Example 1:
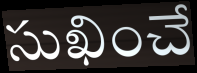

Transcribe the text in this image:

సుఖించే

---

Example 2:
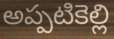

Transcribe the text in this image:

అప్పటికెల్లి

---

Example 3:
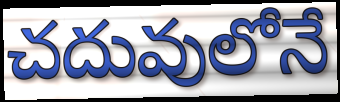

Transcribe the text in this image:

చదువులోనే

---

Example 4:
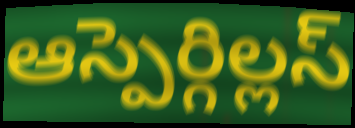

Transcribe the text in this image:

ఆస్పెర్గిల్లస్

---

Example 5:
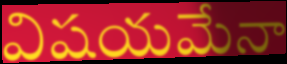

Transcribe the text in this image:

విషయమేనా